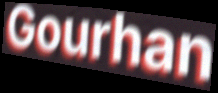
Gourhan